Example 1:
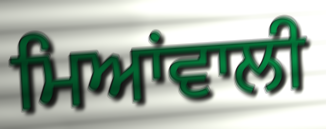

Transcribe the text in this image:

ਮਿਆਂਵਾਲੀ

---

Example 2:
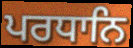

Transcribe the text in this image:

ਪਰਧਾਨਿ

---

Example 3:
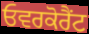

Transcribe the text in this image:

ਓਵਰਕੋਰੈਂਟ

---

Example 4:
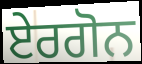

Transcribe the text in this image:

ਏਰਗੋਨ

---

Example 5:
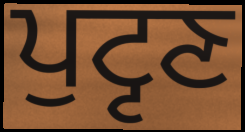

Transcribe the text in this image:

ਪੁਟ੍ਟਣ